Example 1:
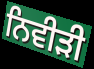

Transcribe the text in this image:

ਨਿਵੀੜੀ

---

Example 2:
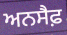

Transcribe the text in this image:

ਅਨਸੈਫ਼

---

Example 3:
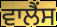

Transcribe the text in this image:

ਵਾਲੈਂਸ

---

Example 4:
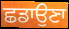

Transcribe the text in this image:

ਛਡਾਉਣਾ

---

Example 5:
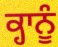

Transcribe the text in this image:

ਕ੍ਹਾਨੂੰ